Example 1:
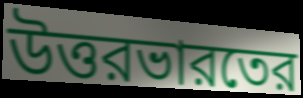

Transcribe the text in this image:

উত্তরভারতের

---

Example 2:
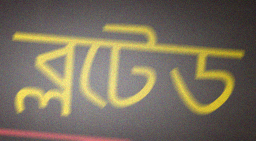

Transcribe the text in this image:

ব্লটেড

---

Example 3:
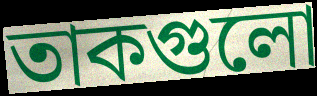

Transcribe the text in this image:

তাকগুলো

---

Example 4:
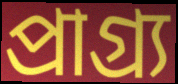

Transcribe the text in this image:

প্রাগ্র্য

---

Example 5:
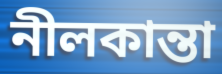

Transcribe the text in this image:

নীলকান্তা